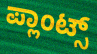
ಪ್ಲಾಂಟ್ಸ್